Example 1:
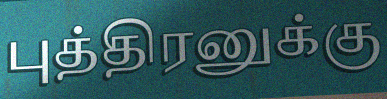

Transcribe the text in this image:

புத்திரனுக்கு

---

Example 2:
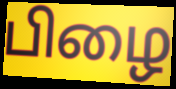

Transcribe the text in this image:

பிழை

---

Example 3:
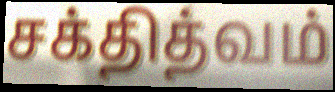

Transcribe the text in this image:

சக்தித்வம்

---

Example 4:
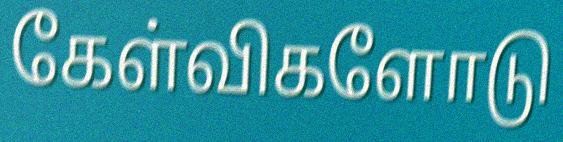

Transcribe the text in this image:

கேள்விகளோடு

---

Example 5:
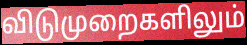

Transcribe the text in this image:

விடுமுறைகளிலும்